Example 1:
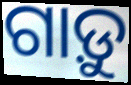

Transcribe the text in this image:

ଗାଡ଼ୁ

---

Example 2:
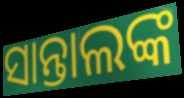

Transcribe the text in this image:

ସାନ୍ତାଲଙ୍କ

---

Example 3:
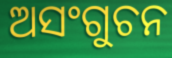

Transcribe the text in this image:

ଅସଂଗୁଚନ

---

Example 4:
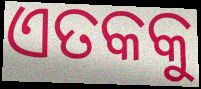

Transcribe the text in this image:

ଏତକକୁ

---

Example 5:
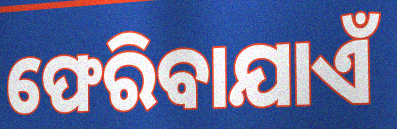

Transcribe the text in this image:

ଫେରିବାଯାଏଁ